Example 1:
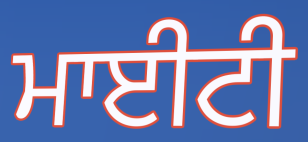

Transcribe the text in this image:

ਮਾਈਟੀ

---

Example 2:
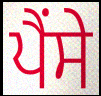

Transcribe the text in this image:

ਪੈਂਸੇ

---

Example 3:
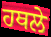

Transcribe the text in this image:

ਹਥਲੇ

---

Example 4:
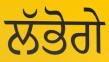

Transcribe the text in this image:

ਲੱਭੋਗੇ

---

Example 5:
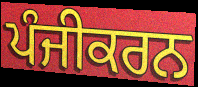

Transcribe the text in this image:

ਪੰਜੀਕਰਨ